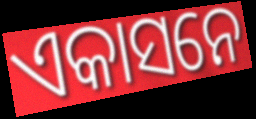
ଏକାସନେ